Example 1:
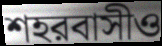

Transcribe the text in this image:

শহরবাসীও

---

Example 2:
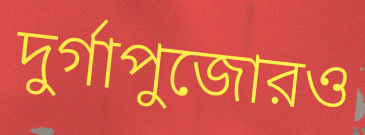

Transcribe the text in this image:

দুর্গাপুজোরও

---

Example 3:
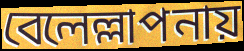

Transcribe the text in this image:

বেলেল্লাপনায়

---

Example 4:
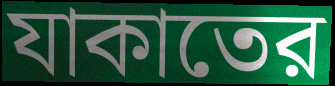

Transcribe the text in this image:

যাকাতের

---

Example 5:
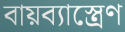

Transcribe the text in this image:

বায়ব্যাস্ত্রেণ